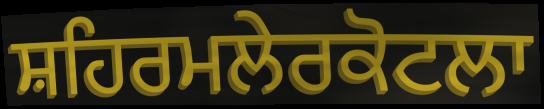
ਸ਼ਹਿਰਮਲੇਰਕੋਟਲਾ